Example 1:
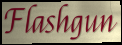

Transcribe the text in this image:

Flashgun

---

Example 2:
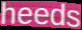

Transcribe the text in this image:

heeds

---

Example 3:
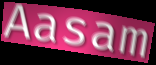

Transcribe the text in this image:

Aasam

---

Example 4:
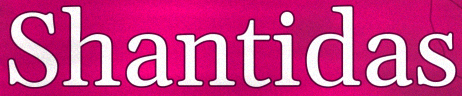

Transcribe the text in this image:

Shantidas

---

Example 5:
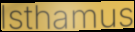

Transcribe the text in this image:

Isthamus